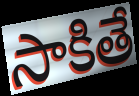
సాకితే